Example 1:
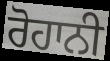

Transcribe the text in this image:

ਰੋਹਾਨੀ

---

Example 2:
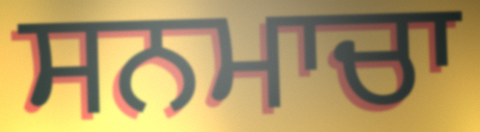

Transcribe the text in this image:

ਸਨਮਾਚਾ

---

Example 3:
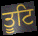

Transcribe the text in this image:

ਤੂਟਿ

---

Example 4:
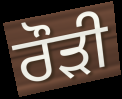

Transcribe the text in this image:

ਰੌੜੀ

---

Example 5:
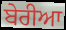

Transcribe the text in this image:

ਬੇਰੀਆ